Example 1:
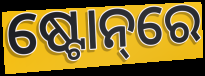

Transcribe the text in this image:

ଷ୍ଟୋନ୍‌ରେ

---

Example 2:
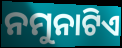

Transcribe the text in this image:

ନମୁନାଟିଏ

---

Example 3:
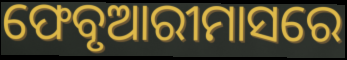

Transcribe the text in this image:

ଫେବୃଆରୀମାସରେ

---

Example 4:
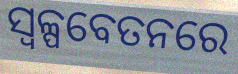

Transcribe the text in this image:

ସ୍ୱଳ୍ପବେତନରେ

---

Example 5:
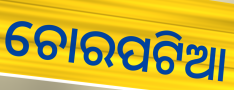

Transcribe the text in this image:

ଚୋରପଟିଆ